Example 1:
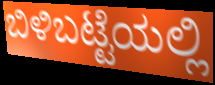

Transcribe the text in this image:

ಬಿಳಿಬಟ್ಟೆಯಲ್ಲಿ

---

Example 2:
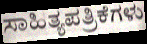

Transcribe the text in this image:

ಸಾಹಿತ್ಯಪತ್ರಿಕೆಗಳು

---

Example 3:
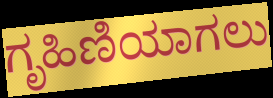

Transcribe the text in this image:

ಗೃಹಿಣಿಯಾಗಲು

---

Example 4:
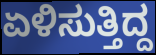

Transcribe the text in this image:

ಏಳಿಸುತ್ತಿದ್ದ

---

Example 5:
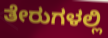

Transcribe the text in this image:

ತೇರುಗಳಲ್ಲಿ